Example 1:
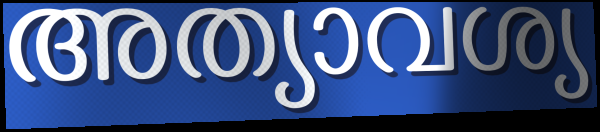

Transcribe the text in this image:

അത്യാവശ്യ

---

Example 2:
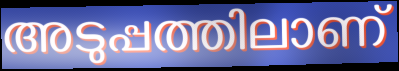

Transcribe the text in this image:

അടുപ്പത്തിലാണ്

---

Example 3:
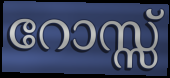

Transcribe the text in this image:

റോസ്സ്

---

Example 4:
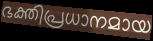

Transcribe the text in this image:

ഭക്തിപ്രധാനമായ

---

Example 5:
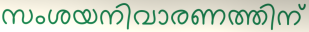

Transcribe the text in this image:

സംശയനിവാരണത്തിന്